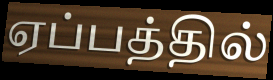
ஏப்பத்தில்